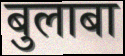
बुलाबा